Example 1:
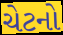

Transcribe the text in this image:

ચેટનો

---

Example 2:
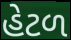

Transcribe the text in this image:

હેટળ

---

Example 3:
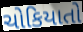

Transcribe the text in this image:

ચોકિયાતો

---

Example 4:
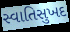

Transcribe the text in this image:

સ્વાતિસુખદ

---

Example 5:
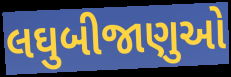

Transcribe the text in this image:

લઘુબીજાણુઓ